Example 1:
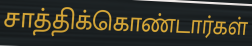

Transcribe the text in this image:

சாத்திக்கொண்டார்கள்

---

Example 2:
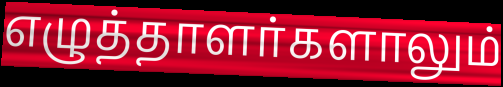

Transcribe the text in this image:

எழுத்தாளர்களாலும்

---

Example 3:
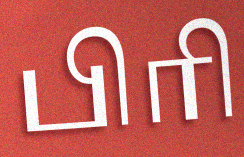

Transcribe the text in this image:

பிரி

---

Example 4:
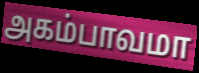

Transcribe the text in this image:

அகம்பாவமா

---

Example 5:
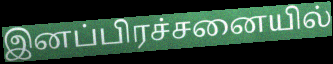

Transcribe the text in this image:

இனப்பிரச்சனையில்